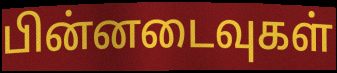
பின்னடைவுகள்